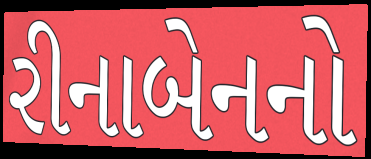
રીનાબેનનો